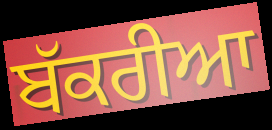
ਬੱਕਰੀਆ